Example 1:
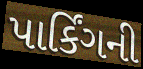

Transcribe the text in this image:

પાર્કિંગની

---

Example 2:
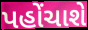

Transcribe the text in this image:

પહોંચાશે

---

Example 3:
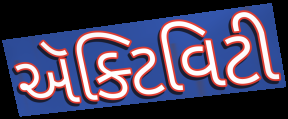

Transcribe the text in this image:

ઍક્ટિવિટી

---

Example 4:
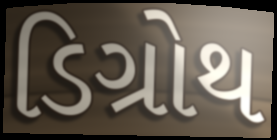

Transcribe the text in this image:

ડિગ્રોથ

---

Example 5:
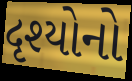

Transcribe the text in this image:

દૃશ્યોનો